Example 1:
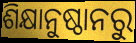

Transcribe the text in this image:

ଶିକ୍ଷାନୁଷ୍ଠାନରୁ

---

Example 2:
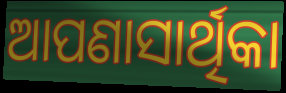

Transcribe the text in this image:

ଆପଣାସାର୍ଥିକା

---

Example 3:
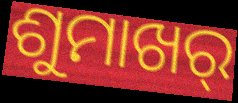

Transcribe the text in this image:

ଶୁମାଖର୍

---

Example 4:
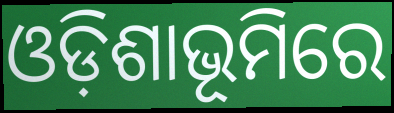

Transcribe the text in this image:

ଓଡ଼ିଶାଭୂମିରେ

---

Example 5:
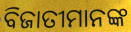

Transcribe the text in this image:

ବିଜାତୀମାନଙ୍କ